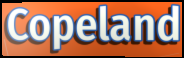
Copeland